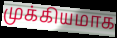
முக்கியமாக